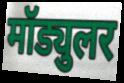
मॉड्युलर